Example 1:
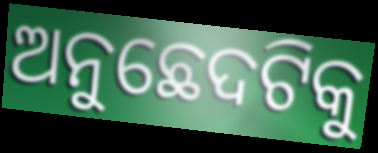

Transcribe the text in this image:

ଅନୁଛେଦଟିକୁ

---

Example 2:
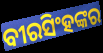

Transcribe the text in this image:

ବୀରସିଂହଙ୍କର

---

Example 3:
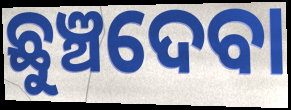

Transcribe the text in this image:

ଛୁଞ୍ଚଦେବା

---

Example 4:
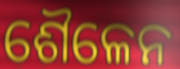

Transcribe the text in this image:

ଶୈଳେନ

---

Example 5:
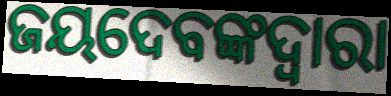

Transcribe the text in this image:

ଜୟଦେବଙ୍କଦ୍ୱାରା